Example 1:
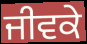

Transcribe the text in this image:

ਜੀਵਕੇ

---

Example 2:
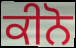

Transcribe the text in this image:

ਕੀਨੋ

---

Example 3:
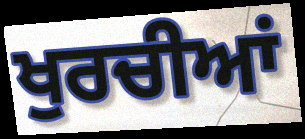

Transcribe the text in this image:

ਖੁਰਚੀਆਂ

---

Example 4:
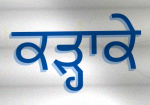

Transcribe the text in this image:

ਕੜ੍ਹਾਕੇ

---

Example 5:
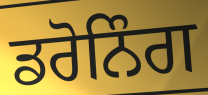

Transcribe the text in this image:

ਡਰੋਨਿੰਗ